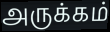
அருக்கம்